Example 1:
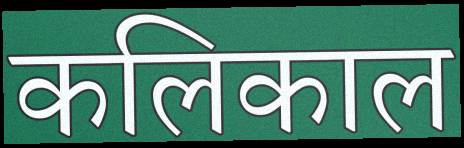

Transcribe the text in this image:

कलिकाल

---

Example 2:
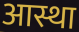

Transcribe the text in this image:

आस्था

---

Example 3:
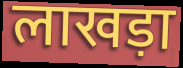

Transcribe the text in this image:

लाखड़ा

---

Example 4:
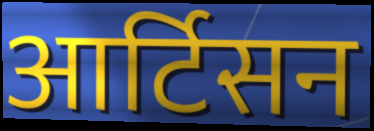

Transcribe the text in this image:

आर्टिसन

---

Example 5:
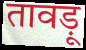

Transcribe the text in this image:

तावड़ू